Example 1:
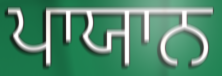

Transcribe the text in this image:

ਪਾਯਾਨ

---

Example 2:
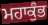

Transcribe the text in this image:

ਮਹਾਕੁੰਭ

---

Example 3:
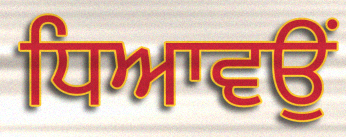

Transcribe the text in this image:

ਧਿਆਵਉਂ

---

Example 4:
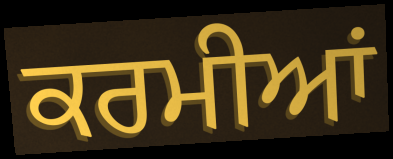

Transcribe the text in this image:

ਕਰਮੀਆਂ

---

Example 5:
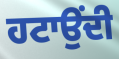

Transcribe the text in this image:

ਹਟਾਉਂਦੀ